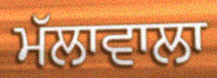
ਮੱਲਾਵਾਲਾ